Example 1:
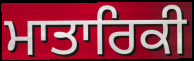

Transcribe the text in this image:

ਮਾਤਾਰਿਕੀ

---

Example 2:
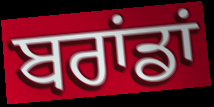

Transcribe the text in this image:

ਬਰਾਂਡਾਂ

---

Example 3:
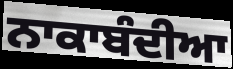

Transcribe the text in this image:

ਨਾਕਾਬੰਦੀਆ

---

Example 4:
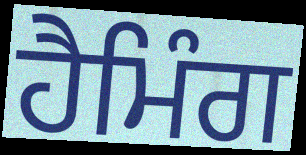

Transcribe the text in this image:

ਹੈਮਿੰਗ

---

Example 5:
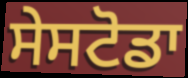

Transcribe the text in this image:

ਸੇਸਟੋਡਾ